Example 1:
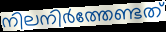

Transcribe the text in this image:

നിലനിർത്തേണ്ടത്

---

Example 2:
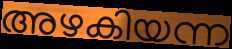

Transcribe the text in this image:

അഴകിയന്ന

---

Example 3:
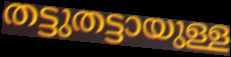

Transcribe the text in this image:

തട്ടുതട്ടായുള്ള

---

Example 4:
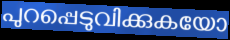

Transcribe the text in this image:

പുറപ്പെടുവിക്കുകയോ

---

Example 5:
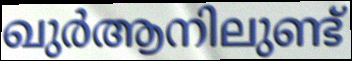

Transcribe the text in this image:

ഖുർആനിലുണ്ട്